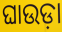
ଘାଉଡ଼ା